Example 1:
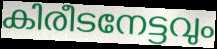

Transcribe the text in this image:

കിരീടനേട്ടവും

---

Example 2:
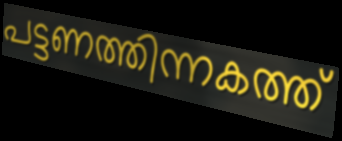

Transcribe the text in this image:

പട്ടണത്തിന്നകത്ത്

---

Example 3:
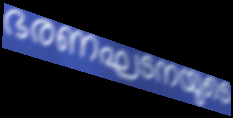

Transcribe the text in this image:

ഭരണഘടനയുടെ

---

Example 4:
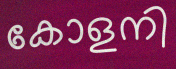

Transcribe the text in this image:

കോളനി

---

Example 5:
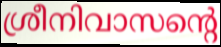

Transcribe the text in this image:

ശ്രീനിവാസന്റെ